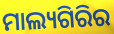
ମାଲ୍ୟଗିରିର